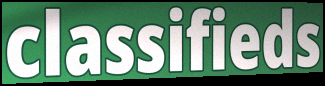
classifieds